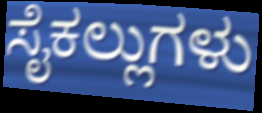
ಸೈಕಲ್ಲುಗಳು